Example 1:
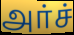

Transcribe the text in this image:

அர்ச்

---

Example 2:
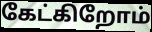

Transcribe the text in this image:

கேட்கிறோம்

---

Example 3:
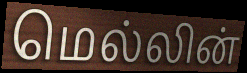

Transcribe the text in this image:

மெல்லின்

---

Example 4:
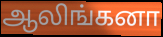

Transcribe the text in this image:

ஆலிங்கனா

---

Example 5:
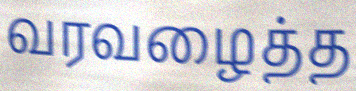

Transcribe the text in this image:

வரவழைத்த